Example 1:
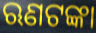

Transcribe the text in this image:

ଋଣଟଙ୍କା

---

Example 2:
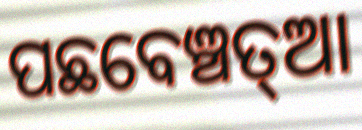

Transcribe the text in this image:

ପଛବେଞ୍ଚତ୍ଆ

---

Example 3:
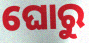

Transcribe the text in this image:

ଘୋରୁ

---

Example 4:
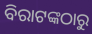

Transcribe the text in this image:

ବିରାଟଙ୍କଠାରୁ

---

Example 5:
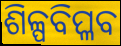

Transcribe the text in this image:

ଶିଳ୍ପବିପ୍ଳବ